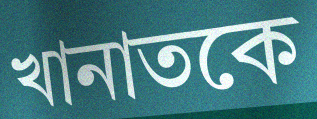
খানাতকে